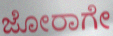
ಜೋರಾಗೇ